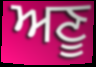
ਅਣੂ